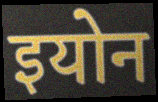
इयोन